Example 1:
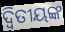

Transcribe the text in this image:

ଦ୍ଵିତୀୟଙ୍କ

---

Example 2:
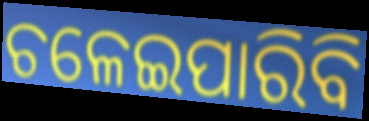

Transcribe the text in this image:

ଚଳେଇପାରିବି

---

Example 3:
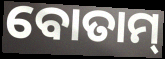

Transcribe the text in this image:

ବୋତାମ୍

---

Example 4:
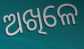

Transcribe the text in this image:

ଅଖିଳେ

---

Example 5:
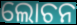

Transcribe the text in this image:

ଲୋଚନ